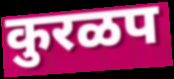
कुरळप